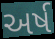
અર્ષ